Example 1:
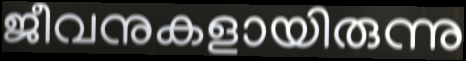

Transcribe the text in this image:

ജീവനുകളായിരുന്നു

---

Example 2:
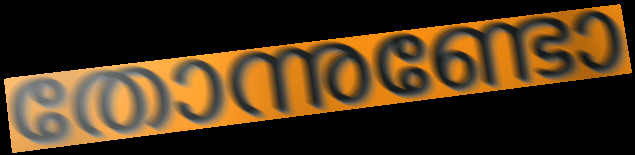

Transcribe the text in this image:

തോന്നുണ്ടോ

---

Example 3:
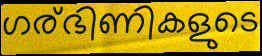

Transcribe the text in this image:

ഗര്ഭിണികളുടെ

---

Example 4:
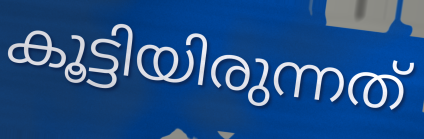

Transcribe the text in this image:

കൂട്ടിയിരുന്നത്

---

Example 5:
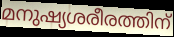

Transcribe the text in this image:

മനുഷ്യശരീരത്തിന്